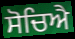
ਸੋਚਿਐ